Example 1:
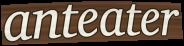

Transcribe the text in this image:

anteater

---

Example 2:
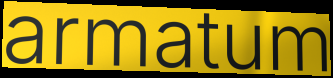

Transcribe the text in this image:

armatum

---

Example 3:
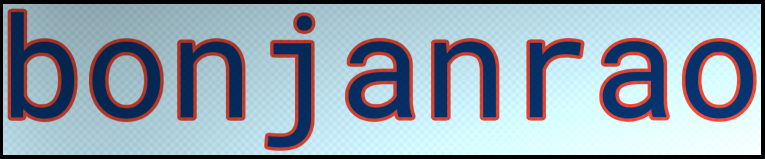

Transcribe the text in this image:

bonjanrao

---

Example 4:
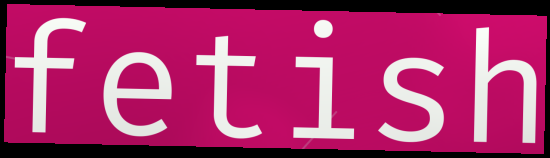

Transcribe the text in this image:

fetish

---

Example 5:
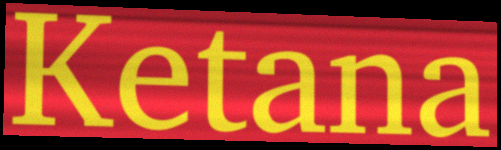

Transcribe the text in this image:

Ketana